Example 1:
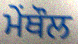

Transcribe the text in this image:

ਮੇਂਥੌਲ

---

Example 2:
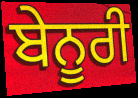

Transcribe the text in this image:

ਬੇਨੂਰੀ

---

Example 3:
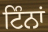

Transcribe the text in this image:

ਟਿੰਨਾਂ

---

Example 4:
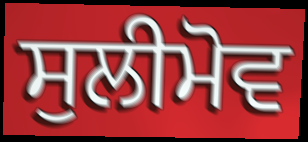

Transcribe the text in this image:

ਸੁਲੀਮੋਵ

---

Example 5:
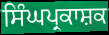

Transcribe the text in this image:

ਸਿੰਘਪ੍ਰਕਾਸ਼ਕ